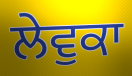
ਲੇਵੁਕਾ